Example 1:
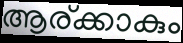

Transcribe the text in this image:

ആര്ക്കാകും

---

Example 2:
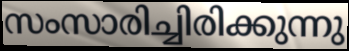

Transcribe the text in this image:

സംസാരിച്ചിരിക്കുന്നു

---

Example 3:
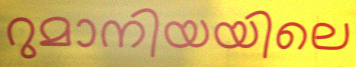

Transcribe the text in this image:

റുമാനിയയിലെ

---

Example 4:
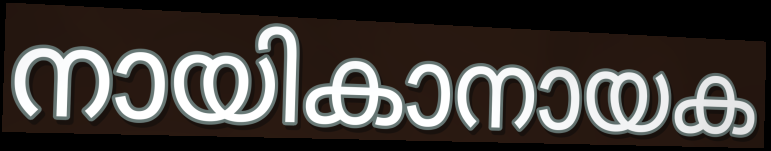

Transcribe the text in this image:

നായികാനായക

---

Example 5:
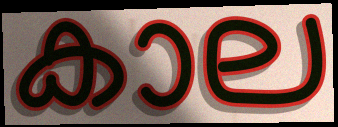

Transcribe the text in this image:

കാല